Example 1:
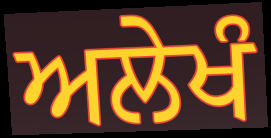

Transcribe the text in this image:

ਅਲੇਖੰ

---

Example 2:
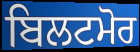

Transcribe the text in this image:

ਬਿਲਟਮੋਰ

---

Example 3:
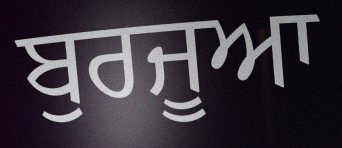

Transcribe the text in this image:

ਬੁਰਜੂਆ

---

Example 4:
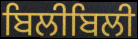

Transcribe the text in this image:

ਬਿਲੀਬਿਲੀ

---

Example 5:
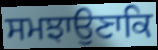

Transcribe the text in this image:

ਸਮਝਾਉਣਾਕਿ